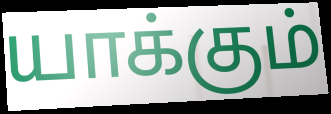
யாக்கும்